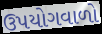
ઉપયોગવાળો